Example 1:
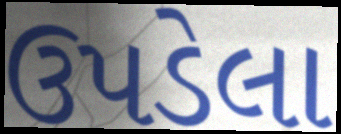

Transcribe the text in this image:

ઉપડેલા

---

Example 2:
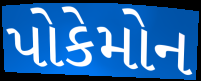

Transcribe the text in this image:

પોકેમોન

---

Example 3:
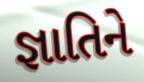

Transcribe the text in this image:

જ્ઞાતિને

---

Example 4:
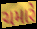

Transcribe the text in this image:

ચમારે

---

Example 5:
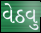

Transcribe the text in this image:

વેઠવુ